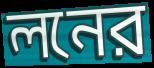
লনের